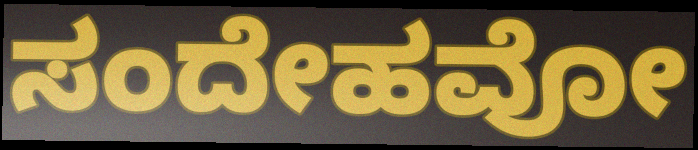
ಸಂದೇಹವೋ